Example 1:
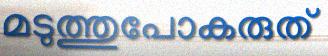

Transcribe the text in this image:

മടുത്തുപോകരുത്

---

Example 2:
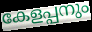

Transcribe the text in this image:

കേളപ്പനും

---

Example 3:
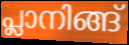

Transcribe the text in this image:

പ്ലാനിങ്ങ്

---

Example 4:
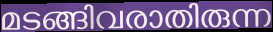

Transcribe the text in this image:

മടങ്ങിവരാതിരുന്ന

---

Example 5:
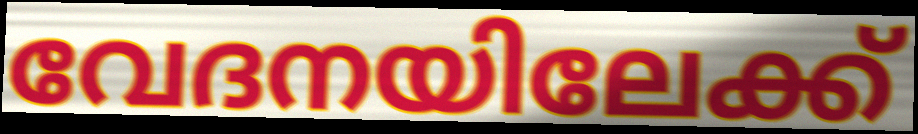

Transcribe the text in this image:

വേദനയിലേക്ക്